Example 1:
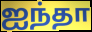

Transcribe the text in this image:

ஐந்தா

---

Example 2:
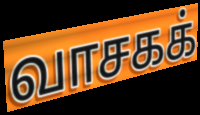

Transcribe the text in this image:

வாசகக்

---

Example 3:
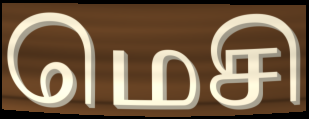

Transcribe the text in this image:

மெசி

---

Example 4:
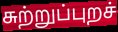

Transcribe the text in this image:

சுற்றுப்புறச்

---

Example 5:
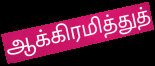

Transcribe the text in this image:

ஆக்கிரமித்துத்